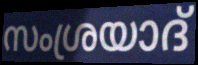
സംശ്രയാദ്